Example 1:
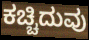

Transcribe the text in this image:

ಕಚ್ಚಿದುವು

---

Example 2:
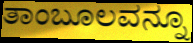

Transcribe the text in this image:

ತಾಂಬೂಲವನ್ನೂ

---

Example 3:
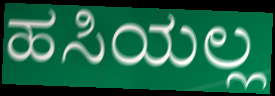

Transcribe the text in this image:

ಹಸಿಯಲ್ಲ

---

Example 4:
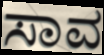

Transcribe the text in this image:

ಸಾವ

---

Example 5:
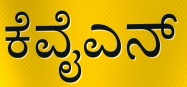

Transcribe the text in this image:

ಕೆವೈಎನ್